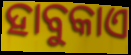
ହାବୁକାଏ